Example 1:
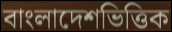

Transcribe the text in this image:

বাংলাদেশভিত্তিক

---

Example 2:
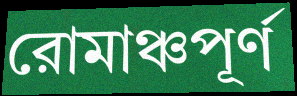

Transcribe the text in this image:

রোমাঞ্চপূর্ণ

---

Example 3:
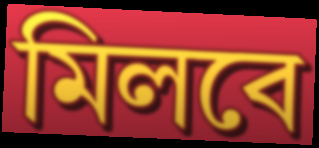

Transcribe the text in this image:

মিলবে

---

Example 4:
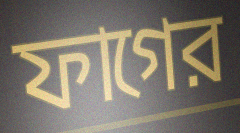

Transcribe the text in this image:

ফাগের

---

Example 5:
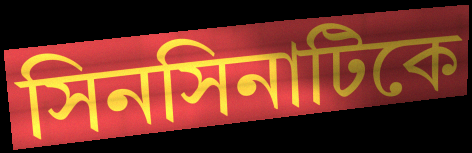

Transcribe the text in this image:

সিনসিনাটিকে